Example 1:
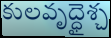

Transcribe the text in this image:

కులవృద్ధైశ్చ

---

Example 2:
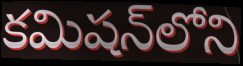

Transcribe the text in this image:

కమిషన్‌లోని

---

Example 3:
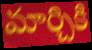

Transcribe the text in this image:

మార్చికి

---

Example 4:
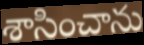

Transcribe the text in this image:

శాసించాను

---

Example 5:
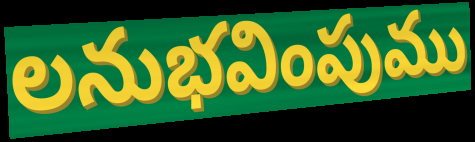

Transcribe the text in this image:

లనుభవింపుము